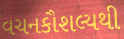
વચનકૌશલ્યથી